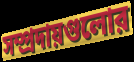
সম্প্রদায়গুলোর